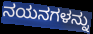
ನಯನಗಳನ್ನು